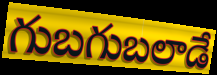
గుబగుబలాడే